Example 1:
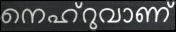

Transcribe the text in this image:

നെഹ്റുവാണ്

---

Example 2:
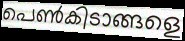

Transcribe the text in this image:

പെൺകിടാങ്ങളെ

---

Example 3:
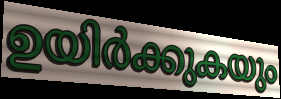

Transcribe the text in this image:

ഉയിർക്കുകയും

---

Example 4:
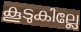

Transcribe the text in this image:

കൂടുകില്ലേ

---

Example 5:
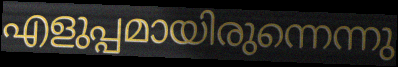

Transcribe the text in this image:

എളുപ്പമായിരുന്നെന്നു